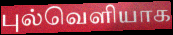
புல்வெளியாக